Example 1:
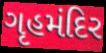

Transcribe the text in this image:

ગૃહમંદિર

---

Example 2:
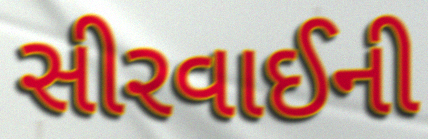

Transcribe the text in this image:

સીરવાઈની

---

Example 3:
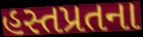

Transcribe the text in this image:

હસ્તપ્રતના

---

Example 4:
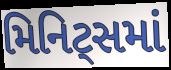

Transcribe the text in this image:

મિનિટ્સમાં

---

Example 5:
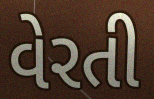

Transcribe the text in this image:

વેરતી